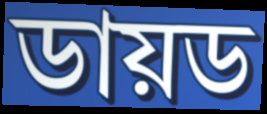
ডায়ড